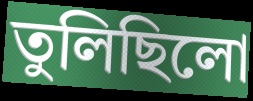
তুলিছিলো